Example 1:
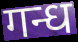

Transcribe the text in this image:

गन्‍ध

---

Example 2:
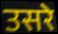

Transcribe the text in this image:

उसरे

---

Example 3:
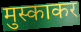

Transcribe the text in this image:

मुस्काकर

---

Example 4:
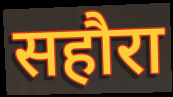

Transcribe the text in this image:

सहौरा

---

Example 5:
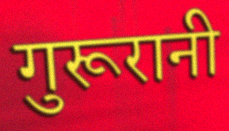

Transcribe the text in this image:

गुरूरानी